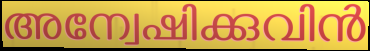
അന്വേഷിക്കുവിൻ